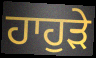
ਹਾਹੁੜੇ